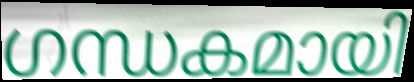
ഗന്ധകമായി